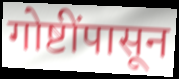
गोष्टींपासून